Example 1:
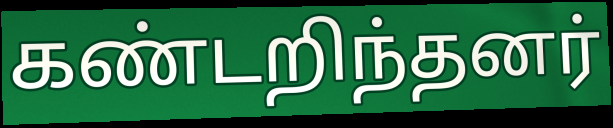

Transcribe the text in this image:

கண்டறிந்தனர்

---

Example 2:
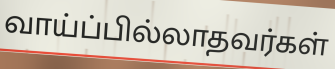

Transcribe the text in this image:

வாய்ப்பில்லாதவர்கள்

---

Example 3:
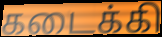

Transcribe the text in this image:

கடைக்கி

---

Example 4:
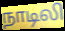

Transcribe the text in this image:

நாடிலி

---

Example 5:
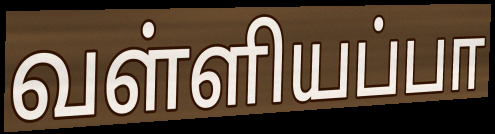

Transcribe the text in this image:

வள்ளியப்பா